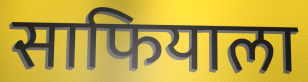
साफियाला